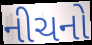
નીચનો